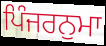
ਪਿੰਜਰਨੁਮਾ